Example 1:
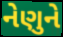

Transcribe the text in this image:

નેણુને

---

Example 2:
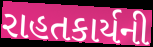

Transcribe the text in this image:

રાહતકાર્યની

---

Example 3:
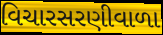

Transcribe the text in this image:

વિચારસરણીવાળા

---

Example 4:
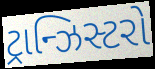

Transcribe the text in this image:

ટ્રાન્ઝિસ્ટરો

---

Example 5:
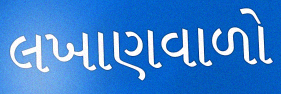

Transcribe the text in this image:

લખાણવાળો